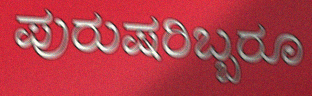
ಪುರುಷರಿಬ್ಬರೂ